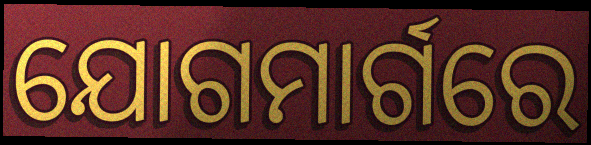
ଯୋଗମାର୍ଗରେ